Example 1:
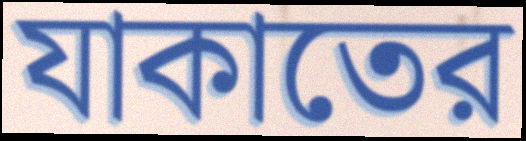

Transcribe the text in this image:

যাকাতের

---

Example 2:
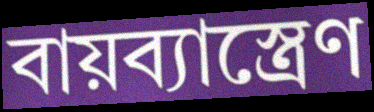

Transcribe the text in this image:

বায়ব্যাস্ত্রেণ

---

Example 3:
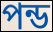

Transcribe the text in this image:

পন্ড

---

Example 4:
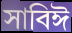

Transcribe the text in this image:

সাবিঈ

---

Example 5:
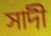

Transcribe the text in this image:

সাদী